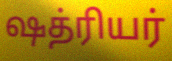
ஷத்ரியர்